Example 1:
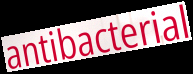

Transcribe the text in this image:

antibacterial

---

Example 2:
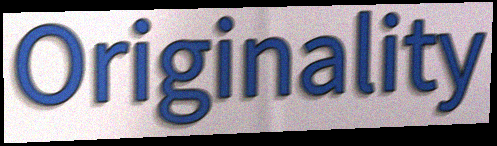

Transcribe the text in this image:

Originality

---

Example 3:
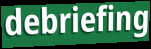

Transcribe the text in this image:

debriefing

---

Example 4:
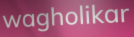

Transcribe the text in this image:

wagholikar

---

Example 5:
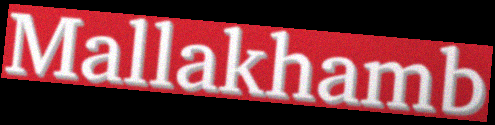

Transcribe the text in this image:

Mallakhamb